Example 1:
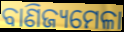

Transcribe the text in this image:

ବାଣିଜ୍ୟମେଳା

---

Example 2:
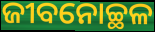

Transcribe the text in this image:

ଜୀବନୋଚ୍ଛଳ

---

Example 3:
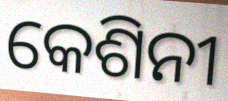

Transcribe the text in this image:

କେଶିନୀ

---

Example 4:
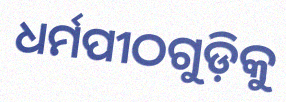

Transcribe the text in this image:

ଧର୍ମପୀଠଗୁଡ଼ିକୁ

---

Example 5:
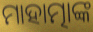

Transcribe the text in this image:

ମାହାତ୍ମାଙ୍କ